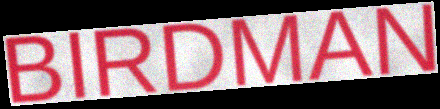
BIRDMAN